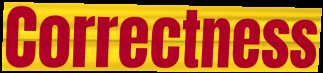
Correctness